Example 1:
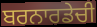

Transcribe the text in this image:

ਬਰਨਾਰਡੇਚੀ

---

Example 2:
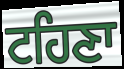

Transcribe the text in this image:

ਟਹਿਣਾ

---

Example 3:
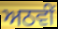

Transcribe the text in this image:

ਅਠਵੀਂ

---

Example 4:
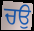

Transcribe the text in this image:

ਚਉ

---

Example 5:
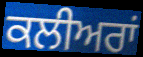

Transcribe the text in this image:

ਕਲੀਅਰਾਂ